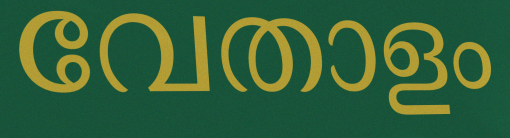
വേതാളം